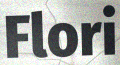
Flori